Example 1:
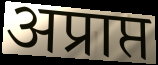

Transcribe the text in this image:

अप्राप्त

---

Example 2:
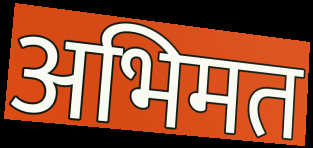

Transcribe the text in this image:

अभिमत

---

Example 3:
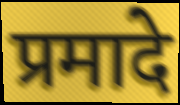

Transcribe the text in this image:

प्रमादे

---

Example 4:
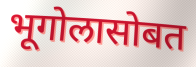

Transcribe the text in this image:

भूगोलासोबत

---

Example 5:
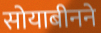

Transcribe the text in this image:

सोयाबीनने